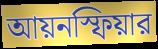
আয়নস্ফিয়ার